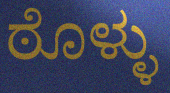
ಠೊಳ್ಳು